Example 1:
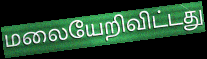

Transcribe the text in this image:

மலையேறிவிட்டது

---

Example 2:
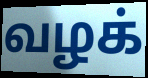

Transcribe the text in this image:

வழக்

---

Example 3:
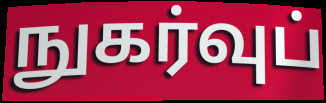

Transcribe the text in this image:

நுகர்வுப்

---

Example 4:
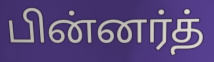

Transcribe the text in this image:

பின்னர்த்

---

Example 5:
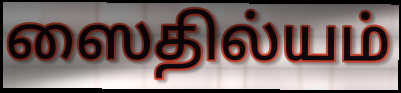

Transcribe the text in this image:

ஸைதில்யம்